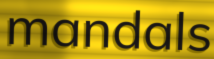
mandals